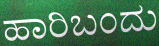
ಹಾರಿಬಂದು